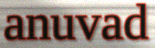
anuvad